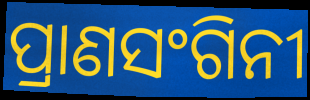
ପ୍ରାଣସଂଗିନୀ